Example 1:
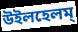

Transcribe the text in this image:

উইলহেলম্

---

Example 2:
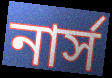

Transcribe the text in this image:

নার্স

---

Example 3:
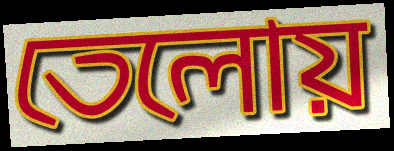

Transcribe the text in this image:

তেলোয়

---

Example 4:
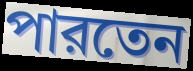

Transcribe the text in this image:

পারতেন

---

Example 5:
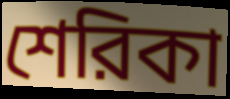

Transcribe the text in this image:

শেরিকা